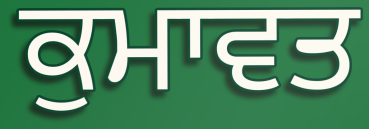
ਕੁਮਾਵਤ